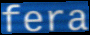
fera